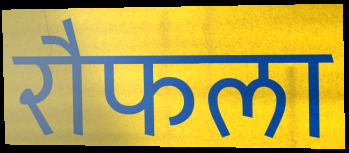
रौफला